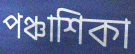
পঞ্চাশিকা